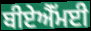
ਬੀਏਐੱਮਈ